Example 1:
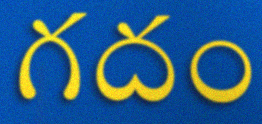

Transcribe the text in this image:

గదం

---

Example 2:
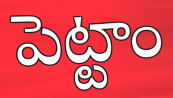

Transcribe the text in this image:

పెట్టాం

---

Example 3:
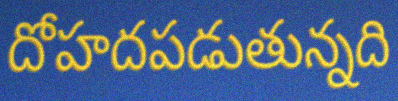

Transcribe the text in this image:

దోహదపడుతున్నది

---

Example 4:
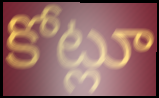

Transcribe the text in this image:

కోట్లూ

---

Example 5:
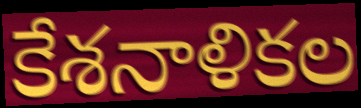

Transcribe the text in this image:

కేశనాళికల